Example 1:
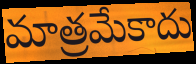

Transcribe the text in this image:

మాత్రమేకాదు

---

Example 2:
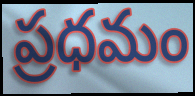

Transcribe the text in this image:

ప్రధమం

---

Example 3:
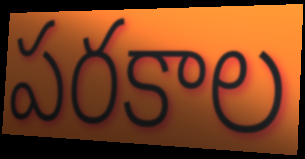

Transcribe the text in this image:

పరకాల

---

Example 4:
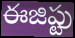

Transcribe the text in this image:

ఈజిప్టు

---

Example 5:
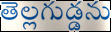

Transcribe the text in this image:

తెల్లగుడ్డను